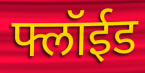
फ्लॉईड